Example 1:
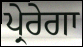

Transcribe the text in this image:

ਪ੍ਰੇਰੇਗਾ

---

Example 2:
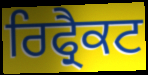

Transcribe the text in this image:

ਰਿਫ੍ਰੈਕਟ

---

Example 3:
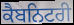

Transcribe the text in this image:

ਕੈਬਨਿਟਰੀ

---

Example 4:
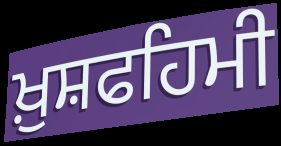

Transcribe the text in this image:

ਖ਼ੁਸ਼ਫਹਿਮੀ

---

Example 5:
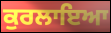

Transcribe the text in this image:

ਕੁਰਲਾਇਆ